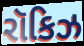
રૉકિઝ